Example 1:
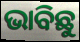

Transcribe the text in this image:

ଭାବିଛୁ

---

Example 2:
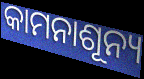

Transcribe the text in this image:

କାମନାଶୂନ୍ୟ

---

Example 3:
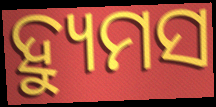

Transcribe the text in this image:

ହ୍ୟୁମସ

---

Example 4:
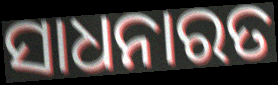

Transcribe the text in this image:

ସାଧନାରତ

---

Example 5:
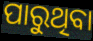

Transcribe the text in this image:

ପାରୁଥିବା